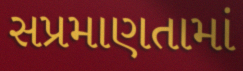
સપ્રમાણતામાં